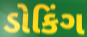
ડોકિંગ